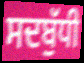
ਸਦਬੁੱਧੀ